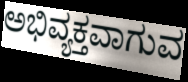
ಅಭಿವ್ಯಕ್ತವಾಗುವ